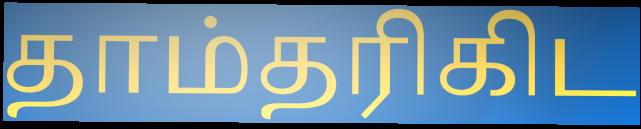
தாம்தரிகிட